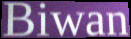
Biwan